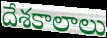
దేశకాలాలు